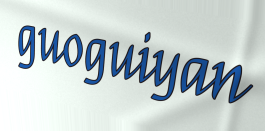
guoguiyan